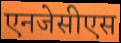
एनजेसीएस